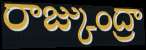
రాజ్కుంద్రా